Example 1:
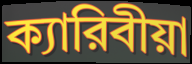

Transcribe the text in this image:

ক্যারিবীয়া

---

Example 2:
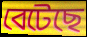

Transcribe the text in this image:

বেটেছে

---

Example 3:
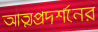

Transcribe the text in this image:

আত্মপ্রদর্শনের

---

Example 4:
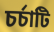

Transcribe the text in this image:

চর্চাটি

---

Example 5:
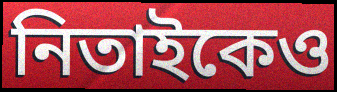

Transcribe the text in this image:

নিতাইকেও